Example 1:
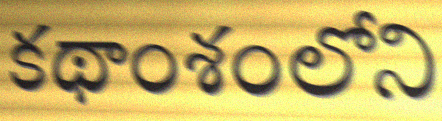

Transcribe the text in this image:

కథాంశంలోని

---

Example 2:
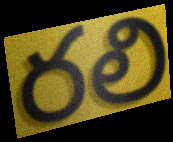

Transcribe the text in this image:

రలి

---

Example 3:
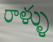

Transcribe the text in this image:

రాళ్ళు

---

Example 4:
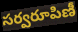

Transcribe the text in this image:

సర్వరూపిణీ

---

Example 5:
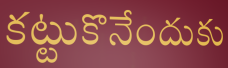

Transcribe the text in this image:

కట్టుకొనేందుకు